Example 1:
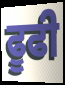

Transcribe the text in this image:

ਫੂਫੀ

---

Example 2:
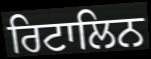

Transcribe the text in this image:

ਰਿਟਾਲਿਨ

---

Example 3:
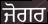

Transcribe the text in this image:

ਜੋਗਰ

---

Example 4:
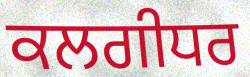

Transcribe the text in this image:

ਕਲਗੀਧਰ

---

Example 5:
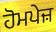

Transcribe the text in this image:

ਹੋਮਪੇਜ਼